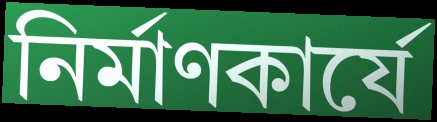
নির্মাণকার্যে